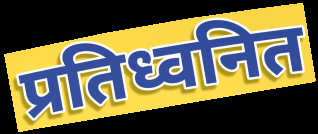
प्रतिध्वनित